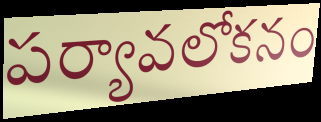
పర్యావలోకనం